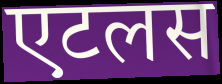
एटलस